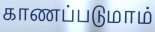
காணப்படுமாம்